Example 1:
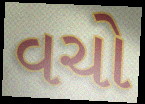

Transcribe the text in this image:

વચો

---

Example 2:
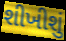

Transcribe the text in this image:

શીખીશું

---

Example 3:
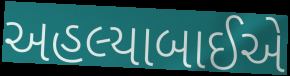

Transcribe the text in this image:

અહલ્યાબાઈએ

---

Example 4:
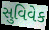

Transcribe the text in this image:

સુવિવેક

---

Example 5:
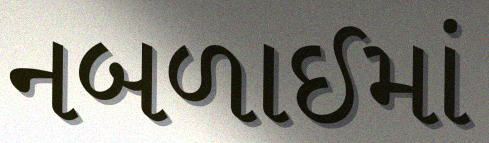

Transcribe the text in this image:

નબળાઈમાં